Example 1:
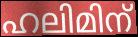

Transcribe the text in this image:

ഹലിമിന്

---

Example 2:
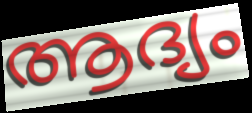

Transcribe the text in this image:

ആദ്യം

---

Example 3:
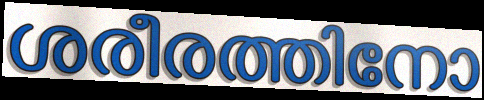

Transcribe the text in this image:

ശരീരത്തിനോ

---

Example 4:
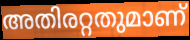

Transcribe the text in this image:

അതിരറ്റതുമാണ്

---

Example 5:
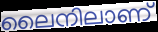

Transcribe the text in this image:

ലൈനിലാണ്